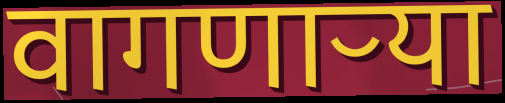
वागणाऱ्या